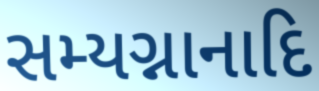
સમ્યગ્નાનાદિ